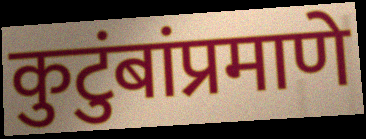
कुटुंबांप्रमाणे